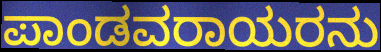
ಪಾಂಡವರಾಯರನು